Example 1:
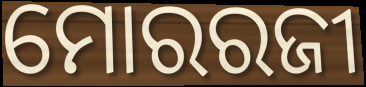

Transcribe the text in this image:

ମୋରରଜୀ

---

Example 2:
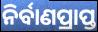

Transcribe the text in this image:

ନିର୍ବାଣପ୍ରାପ୍ତ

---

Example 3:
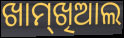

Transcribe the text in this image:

ଖାମ୍‌ଖିଆଲ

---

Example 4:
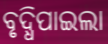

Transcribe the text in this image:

ବୃଦ୍ଧିପାଇଲା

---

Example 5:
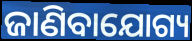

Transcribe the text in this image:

ଜାଣିବାଯୋଗ୍ୟ